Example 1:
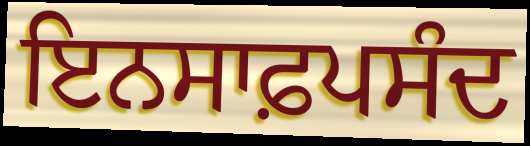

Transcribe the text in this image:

ਇਨਸਾਫ਼ਪਸੰਦ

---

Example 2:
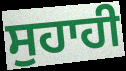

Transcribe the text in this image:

ਸੁਹਾਹੀ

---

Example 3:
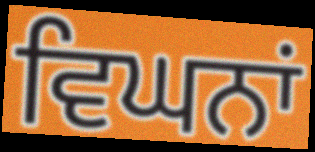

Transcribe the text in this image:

ਵਿਘਨਾਂ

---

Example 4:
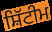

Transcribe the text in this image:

ਸ਼ਿੱਟੀਮ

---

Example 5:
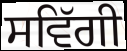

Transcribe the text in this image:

ਸਵਿੱਗੀ